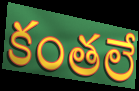
కంతలే